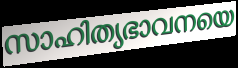
സാഹിത്യഭാവനയെ